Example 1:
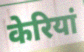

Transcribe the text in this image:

केरियां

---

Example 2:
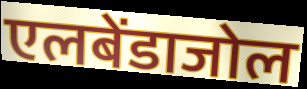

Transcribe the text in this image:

एलबेंडाजोल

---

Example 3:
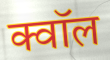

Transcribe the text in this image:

क्वॉल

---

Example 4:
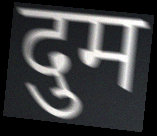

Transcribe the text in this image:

दुम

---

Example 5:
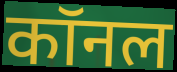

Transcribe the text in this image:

कॉनल